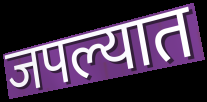
जपल्यात